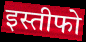
इस्तीफो